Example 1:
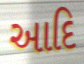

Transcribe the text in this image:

આદિ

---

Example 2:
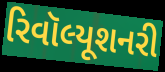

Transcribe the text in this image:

રિવૉલ્યૂશનરી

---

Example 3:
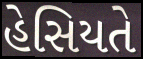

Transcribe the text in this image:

હેસિયતે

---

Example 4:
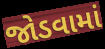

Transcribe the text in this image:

જોડવામાં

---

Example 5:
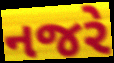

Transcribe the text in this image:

નજરે